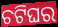
ଚଟିଘର